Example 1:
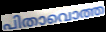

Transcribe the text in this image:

പിതാവൊത്ത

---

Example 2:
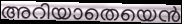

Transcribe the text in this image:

അറിയാതെയെൻ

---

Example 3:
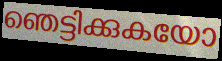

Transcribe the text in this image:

ഞെട്ടിക്കുകയോ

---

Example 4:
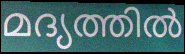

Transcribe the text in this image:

മദ്യത്തിൽ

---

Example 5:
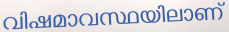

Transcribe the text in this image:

വിഷമാവസ്ഥയിലാണ്